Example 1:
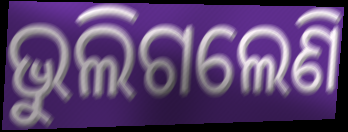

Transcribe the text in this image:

ଭୁଲିଗଲେଣି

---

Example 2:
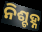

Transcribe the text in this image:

ନିଶ୍ଚହ୍ନ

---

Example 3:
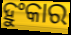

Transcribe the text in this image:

ହୁଂକାର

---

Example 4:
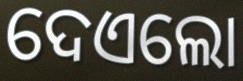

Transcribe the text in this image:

ଦେଏଲୋ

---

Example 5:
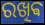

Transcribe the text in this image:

ରଖିଵ